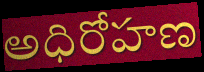
అధిరోహణ